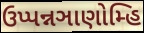
ઉપ્પન્નઞાણોમ્હિ